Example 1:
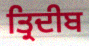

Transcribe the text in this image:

ਤ੍ਰਿਦੀਬ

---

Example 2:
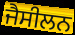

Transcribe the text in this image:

ਜੈਸੀਲਨ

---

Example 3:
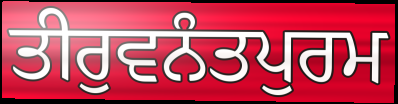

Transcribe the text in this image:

ਤੀਰੁਵਨੰਤਪੁਰਮ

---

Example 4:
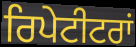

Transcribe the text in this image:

ਰਿਪੇਟੀਟਰਾਂ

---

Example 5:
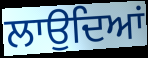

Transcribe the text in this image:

ਲਾਉਦਿਆਂ